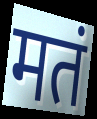
मतं